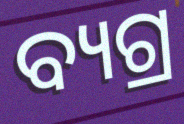
ବ୍ୟଗ୍ର